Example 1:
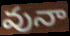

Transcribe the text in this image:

వునా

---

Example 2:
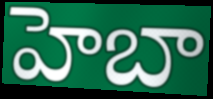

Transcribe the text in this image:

హెబా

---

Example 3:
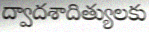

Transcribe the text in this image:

ద్వాదశాదిత్యులకు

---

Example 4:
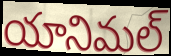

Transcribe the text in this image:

యానిమల్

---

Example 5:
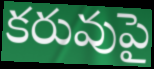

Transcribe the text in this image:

కరువుపై